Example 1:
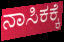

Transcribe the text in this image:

ನಾಸಿಕಕ್ಕೆ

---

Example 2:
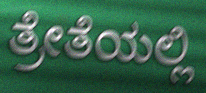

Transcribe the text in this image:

ತ್ರೇತೆಯಲ್ಲಿ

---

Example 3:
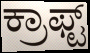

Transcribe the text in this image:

ಕ್ರಾಫ್ಟ್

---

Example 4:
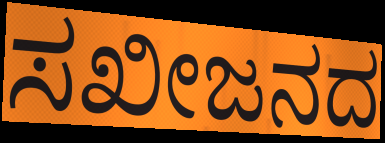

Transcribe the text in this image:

ಸಖೀಜನದ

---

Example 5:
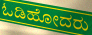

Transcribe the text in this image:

ಓಡಿಹೋದರು